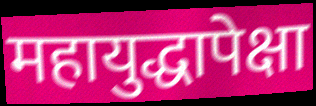
महायुद्धापेक्षा